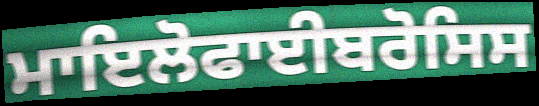
ਮਾਇਲੋਫਾਈਬਰੋਸਿਸ